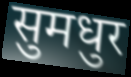
सुमधुर